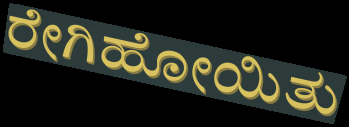
ರೇಗಿಹೋಯಿತು